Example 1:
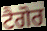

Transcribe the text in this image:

ਟੈਗੋਰ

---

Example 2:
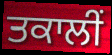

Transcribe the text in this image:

ਤਕਾਲੀਂ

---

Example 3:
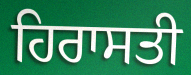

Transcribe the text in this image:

ਹਿਰਾਸਤੀ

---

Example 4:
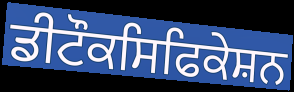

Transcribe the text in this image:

ਡੀਟੌਕਸਿਫਿਕੇਸ਼ਨ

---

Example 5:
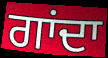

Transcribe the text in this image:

ਗਾਂਦਾ